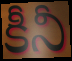
కీనీ